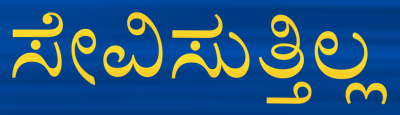
ಸೇವಿಸುತ್ತಿಲ್ಲ